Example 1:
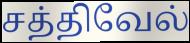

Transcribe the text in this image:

சத்திவேல்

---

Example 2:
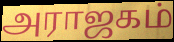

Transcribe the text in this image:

அராஜகம்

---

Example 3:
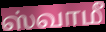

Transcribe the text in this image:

ஸ்வாமீ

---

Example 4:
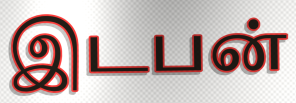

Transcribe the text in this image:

இடபன்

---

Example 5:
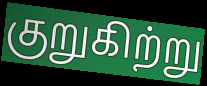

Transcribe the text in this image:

குறுகிற்று